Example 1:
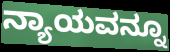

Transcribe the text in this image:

ನ್ಯಾಯವನ್ನೂ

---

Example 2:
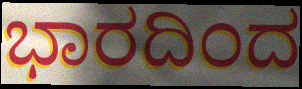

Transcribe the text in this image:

ಭಾರದಿಂದ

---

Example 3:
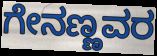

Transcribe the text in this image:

ಗೇನಣ್ಣವರ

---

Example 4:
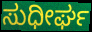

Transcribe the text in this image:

ಸುಧೀರ್ಘ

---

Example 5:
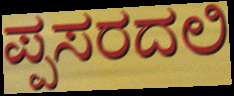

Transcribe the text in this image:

ಪ್ಪಸರದಲಿ